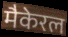
मैकेरल